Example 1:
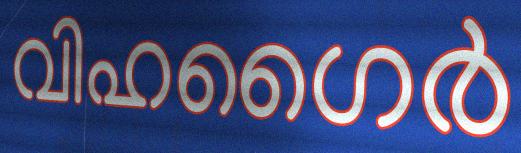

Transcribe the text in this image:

വിഹഗൈർ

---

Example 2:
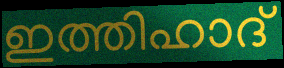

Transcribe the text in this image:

ഇത്തിഹാദ്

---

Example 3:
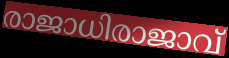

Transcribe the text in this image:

രാജാധിരാജാവ്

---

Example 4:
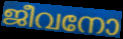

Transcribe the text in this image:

ജീവനോ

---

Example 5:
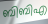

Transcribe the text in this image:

ബിബിഎ